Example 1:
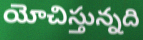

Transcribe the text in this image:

యోచిస్తున్నది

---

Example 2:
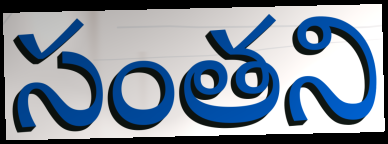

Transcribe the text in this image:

సంతని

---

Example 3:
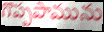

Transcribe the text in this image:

గొప్పపామును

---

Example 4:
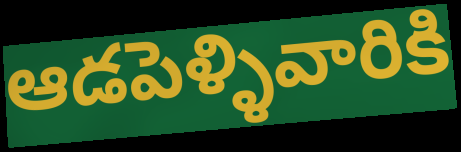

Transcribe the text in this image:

ఆడపెళ్ళివారికి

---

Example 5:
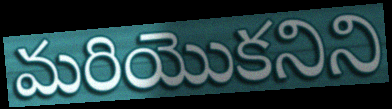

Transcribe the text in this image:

మరియొకనిని